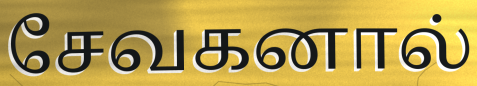
சேவகனால்